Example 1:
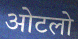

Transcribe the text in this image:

ओटलो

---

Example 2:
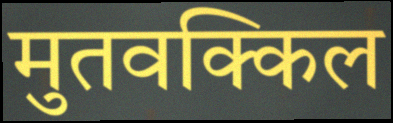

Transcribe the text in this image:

मुतवक्किल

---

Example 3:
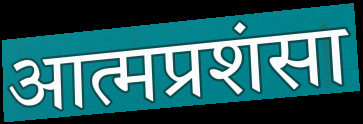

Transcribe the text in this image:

आत्मप्रशंसा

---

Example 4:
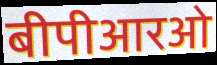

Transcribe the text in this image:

बीपीआरओ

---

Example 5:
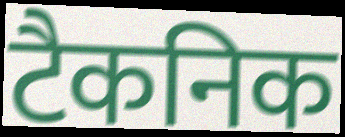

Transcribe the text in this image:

टैकनिक